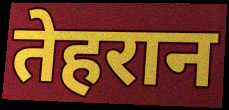
तेहरान